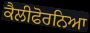
ਕੈਲੀਫੋਰਨਿਆ